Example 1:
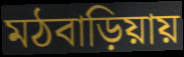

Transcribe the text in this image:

মঠবাড়িয়ায়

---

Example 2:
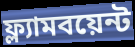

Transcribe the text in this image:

ফ্ল্যামবয়েন্ট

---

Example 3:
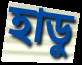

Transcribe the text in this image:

হাডু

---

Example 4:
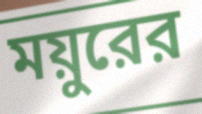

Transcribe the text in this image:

ময়ুরের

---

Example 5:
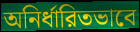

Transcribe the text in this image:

অনির্ধারিতভাবে